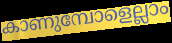
കാണുമ്പോളെല്ലാം